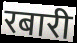
रबारी